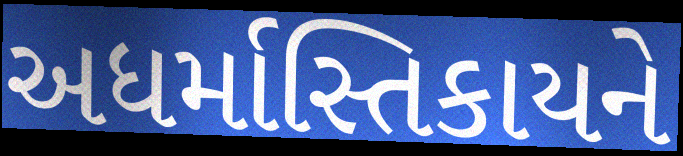
અધર્માસ્તિકાયને